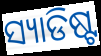
ସ୍ୟାଡିଷ୍ଟ